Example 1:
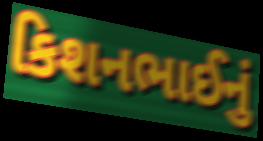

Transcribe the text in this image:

કિશનભાઈનું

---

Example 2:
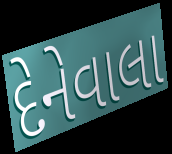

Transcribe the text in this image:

દેનેવાલા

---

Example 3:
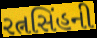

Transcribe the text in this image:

રત્નસિંહની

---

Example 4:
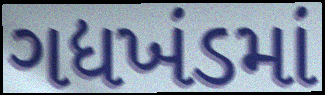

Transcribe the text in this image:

ગદ્યખંડમાં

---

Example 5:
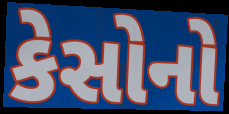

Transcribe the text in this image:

કેસોનો